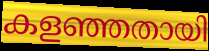
കളഞ്ഞതായി